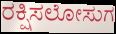
ರಕ್ಷಿಸಲೋಸುಗ